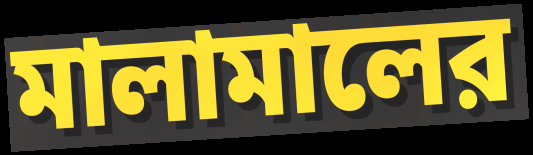
মালামালের